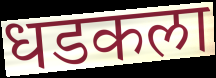
धडकला